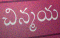
చిన్మయ